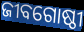
ଜୀବଗୋଷ୍ଠୀ